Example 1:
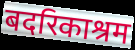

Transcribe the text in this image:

बदरिकाश्रम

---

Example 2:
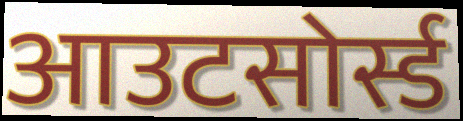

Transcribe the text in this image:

आउटसोर्स्ड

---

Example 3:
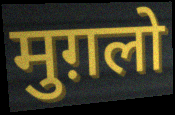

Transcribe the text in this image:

मुग़लो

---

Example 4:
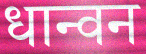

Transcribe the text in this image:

धान्वन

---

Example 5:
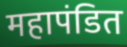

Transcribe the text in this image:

महापंडित